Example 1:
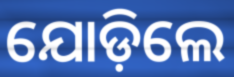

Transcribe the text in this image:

ଯୋଡ଼ିଲେ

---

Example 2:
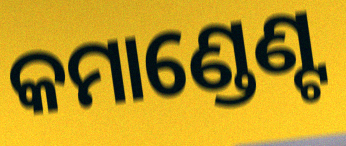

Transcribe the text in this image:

କମାଣ୍ଡେଣ୍ଟ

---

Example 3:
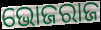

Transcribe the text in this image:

ଭୋଜରାଜ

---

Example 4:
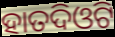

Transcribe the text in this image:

ହାତଦିଓଟି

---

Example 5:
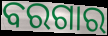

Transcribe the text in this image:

ବରଗାର